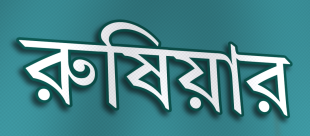
রুষিয়ার